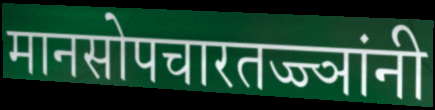
मानसोपचारतज्ज्ञांनी